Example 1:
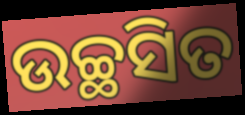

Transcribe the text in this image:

ଉଚ୍ଛସିତ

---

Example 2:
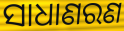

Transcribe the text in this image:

ସାଧାଣରଣ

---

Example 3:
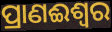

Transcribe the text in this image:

ପ୍ରାଣଈଶ୍ୱର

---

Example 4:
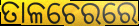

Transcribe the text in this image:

ତାଳଚେରରେ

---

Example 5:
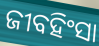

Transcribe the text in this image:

ଜୀବହିଂସା